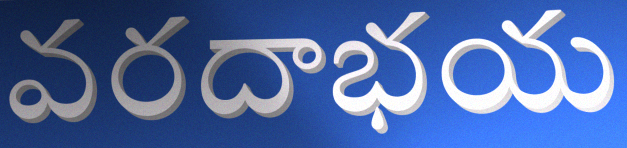
వరదాభయ